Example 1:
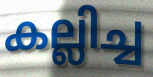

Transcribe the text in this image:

കല്ലിച്ച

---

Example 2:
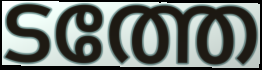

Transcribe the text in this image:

ടത്തേ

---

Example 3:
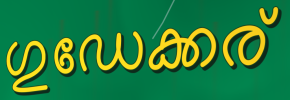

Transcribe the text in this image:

ഗുഡേക്കര്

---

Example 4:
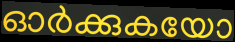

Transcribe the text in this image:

ഓർക്കുകയോ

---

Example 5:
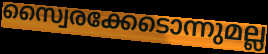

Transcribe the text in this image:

സ്വൈരക്കേടൊന്നുമല്ല